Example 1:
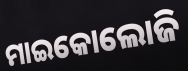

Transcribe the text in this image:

ମାଇକୋଲୋଜି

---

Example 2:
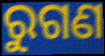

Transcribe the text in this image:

ରୁଗଣ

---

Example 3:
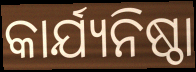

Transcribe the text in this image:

କାର୍ଯ୍ୟନିଷ୍ଠା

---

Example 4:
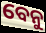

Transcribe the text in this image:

ବେନୁ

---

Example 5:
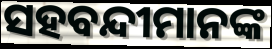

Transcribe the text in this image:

ସହବନ୍ଦୀମାନଙ୍କ